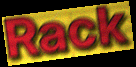
Rack